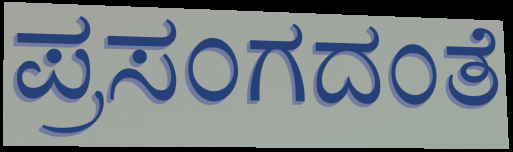
ಪ್ರಸಂಗದಂತೆ